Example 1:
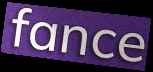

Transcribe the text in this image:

fance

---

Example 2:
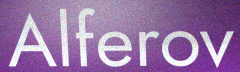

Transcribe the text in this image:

Alferov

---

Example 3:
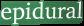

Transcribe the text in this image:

epidural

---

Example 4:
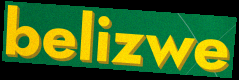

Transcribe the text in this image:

belizwe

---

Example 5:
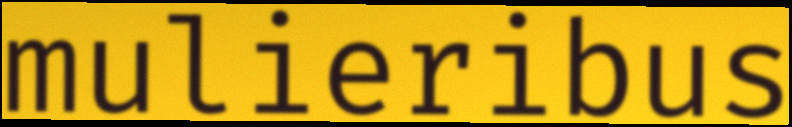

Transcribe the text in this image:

mulieribus